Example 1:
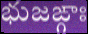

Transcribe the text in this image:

భుజఙ్గాః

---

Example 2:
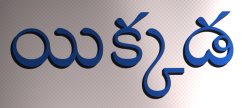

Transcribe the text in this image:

యిక్కడ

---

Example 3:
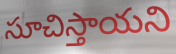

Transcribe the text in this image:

సూచిస్తాయని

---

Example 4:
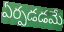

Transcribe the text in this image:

ఏర్పడడమే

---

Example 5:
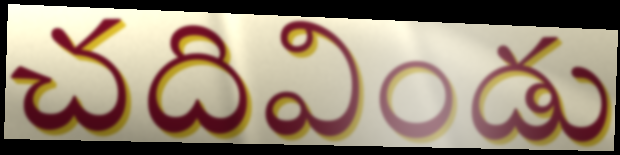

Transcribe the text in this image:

చదివిండు